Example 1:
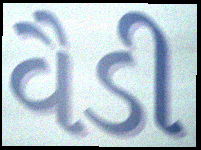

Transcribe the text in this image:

વૈડી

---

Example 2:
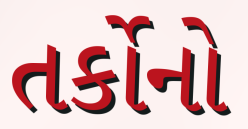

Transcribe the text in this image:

તર્કોનો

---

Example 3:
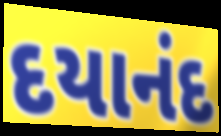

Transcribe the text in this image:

દયાનંદ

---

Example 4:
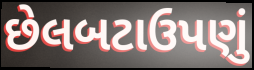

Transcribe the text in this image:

છેલબટાઉપણું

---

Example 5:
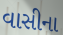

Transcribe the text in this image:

વાસીના